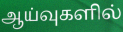
ஆய்வுகளில்